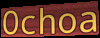
Ochoa